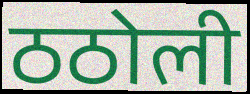
ठठोली